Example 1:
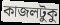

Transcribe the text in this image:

কাজলটুকু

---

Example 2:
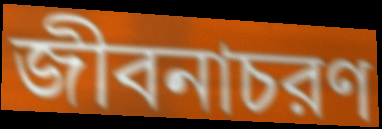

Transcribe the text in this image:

জীবনাচরণ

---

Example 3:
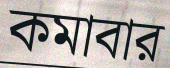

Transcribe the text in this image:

কমাবার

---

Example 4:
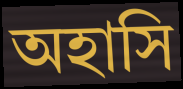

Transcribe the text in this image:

অহাসি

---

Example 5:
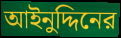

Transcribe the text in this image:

আইনুদ্দিনের